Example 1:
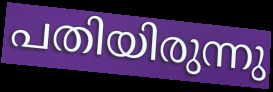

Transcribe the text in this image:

പതിയിരുന്നു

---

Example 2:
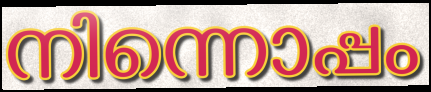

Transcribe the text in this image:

നിന്നൊപ്പം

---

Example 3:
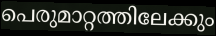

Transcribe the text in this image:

പെരുമാറ്റത്തിലേക്കും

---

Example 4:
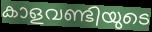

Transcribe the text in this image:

കാളവണ്ടിയുടെ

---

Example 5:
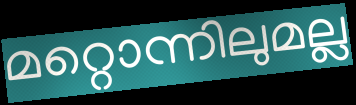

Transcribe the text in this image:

മറ്റൊന്നിലുമല്ല